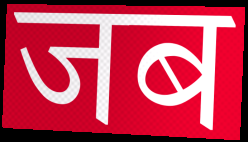
जब